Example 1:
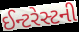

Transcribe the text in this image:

ઈન્ટરેસ્ટની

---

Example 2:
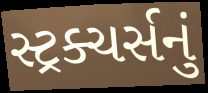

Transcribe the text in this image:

સ્ટ્રક્ચર્સનું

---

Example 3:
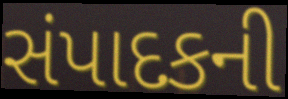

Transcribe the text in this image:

સંપાદકની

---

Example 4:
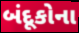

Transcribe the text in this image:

બંદૂકોના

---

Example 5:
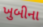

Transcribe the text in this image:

ખુબીના